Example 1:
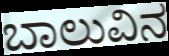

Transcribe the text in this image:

ಬಾಲುವಿನ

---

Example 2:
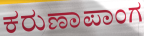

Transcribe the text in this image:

ಕರುಣಾಪಾಂಗ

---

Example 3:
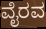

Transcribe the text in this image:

ವೈರವ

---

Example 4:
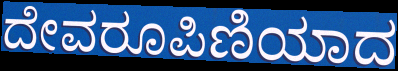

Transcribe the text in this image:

ದೇವರೂಪಿಣಿಯಾದ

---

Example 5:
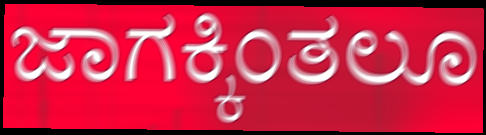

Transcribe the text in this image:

ಜಾಗಕ್ಕಿಂತಲೂ